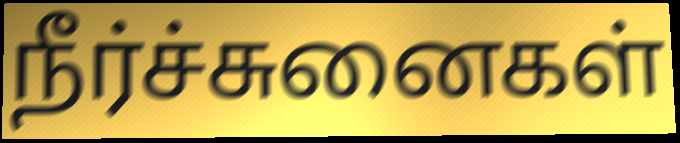
நீர்ச்சுனைகள்